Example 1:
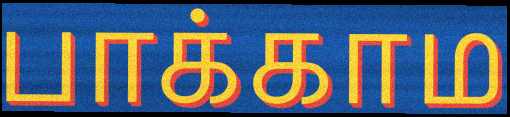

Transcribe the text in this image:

பாக்காம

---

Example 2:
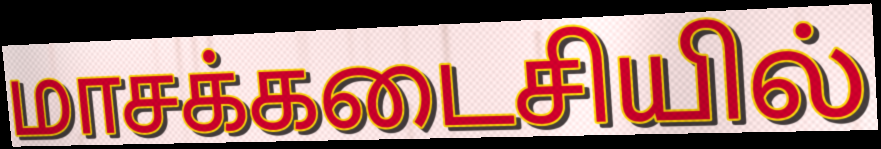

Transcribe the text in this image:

மாசக்கடைசியில்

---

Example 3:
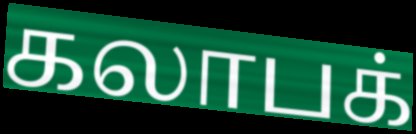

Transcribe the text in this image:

கலாபக்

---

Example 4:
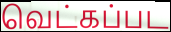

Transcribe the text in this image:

வெட்கப்பட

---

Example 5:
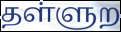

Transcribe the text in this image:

தள்ளுற